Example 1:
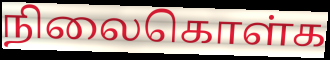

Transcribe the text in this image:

நிலைகொள்க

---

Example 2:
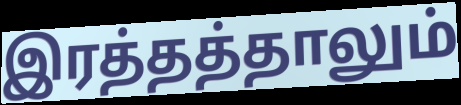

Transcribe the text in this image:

இரத்தத்தாலும்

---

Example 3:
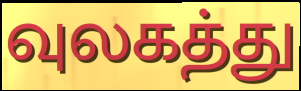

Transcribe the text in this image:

வுலகத்து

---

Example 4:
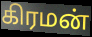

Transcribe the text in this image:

கிரமன்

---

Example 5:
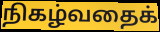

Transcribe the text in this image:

நிகழ்வதைக்